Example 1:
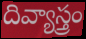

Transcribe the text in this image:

దివ్యాస్త్రం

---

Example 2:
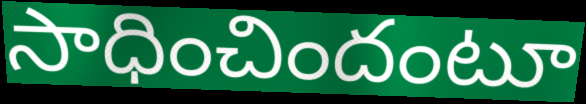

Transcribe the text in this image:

సాధించిందంటూ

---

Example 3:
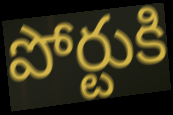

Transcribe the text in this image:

పోర్టుకి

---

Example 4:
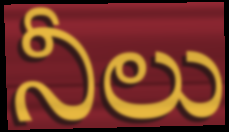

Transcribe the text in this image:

నీలు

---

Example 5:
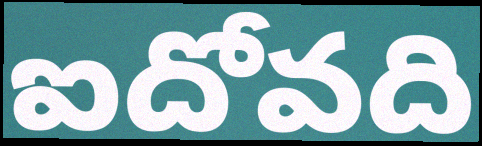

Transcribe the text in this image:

ఐదోవది